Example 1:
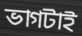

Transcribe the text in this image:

ভাগটাই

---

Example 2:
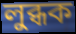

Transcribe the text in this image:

লুব্ধক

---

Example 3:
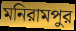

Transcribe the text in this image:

মনিরামপুর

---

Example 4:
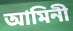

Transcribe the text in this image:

আমিনী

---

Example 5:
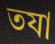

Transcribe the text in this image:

তযা